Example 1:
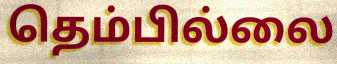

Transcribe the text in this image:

தெம்பில்லை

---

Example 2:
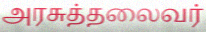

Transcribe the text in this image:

அரசுத்தலைவர்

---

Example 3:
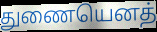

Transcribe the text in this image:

துணையெனத்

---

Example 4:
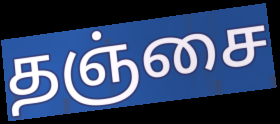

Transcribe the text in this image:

தஞ்சை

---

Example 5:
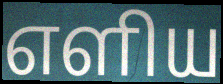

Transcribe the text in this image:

எளிய